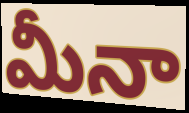
మీనా